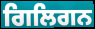
ਗਿਲਿਗਨ